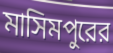
মাসিমপুরের